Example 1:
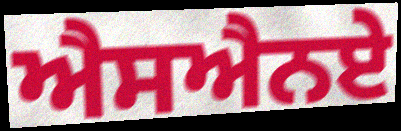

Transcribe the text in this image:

ਐਸਐਨਏ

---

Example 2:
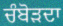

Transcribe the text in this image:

ਚੰਬੋੜਦਾ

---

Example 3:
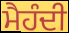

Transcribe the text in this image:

ਮੈਹੰਦੀ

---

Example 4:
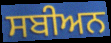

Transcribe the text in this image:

ਸਬੀਅਨ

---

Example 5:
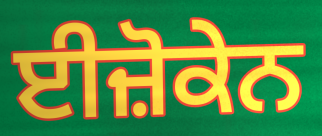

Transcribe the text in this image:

ਈਜ਼ੋਕੇਨ